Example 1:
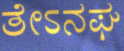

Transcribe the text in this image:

ತೇಽನಘ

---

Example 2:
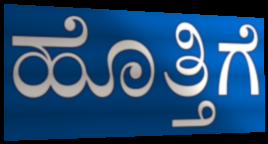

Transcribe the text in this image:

ಹೊತ್ತಿಗೆ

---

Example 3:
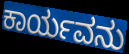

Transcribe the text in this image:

ಕಾರ್ಯವನು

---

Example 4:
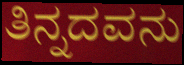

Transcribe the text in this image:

ತಿನ್ನದವನು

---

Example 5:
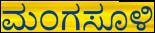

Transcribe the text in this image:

ಮಂಗಸೂಳಿ